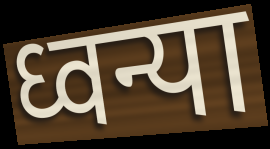
ध्वन्या